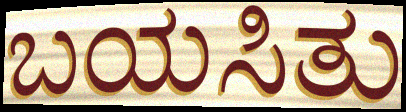
ಬಯಸಿತು